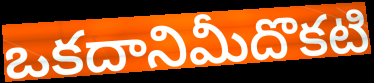
ఒకదానిమీదొకటి